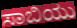
ಸಾಬಿಯು